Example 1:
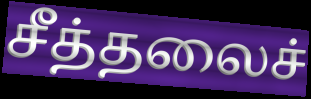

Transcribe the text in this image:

சீத்தலைச்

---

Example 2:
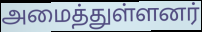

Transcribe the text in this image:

அமைத்துள்ளனர்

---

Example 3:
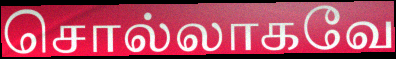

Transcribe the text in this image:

சொல்லாகவே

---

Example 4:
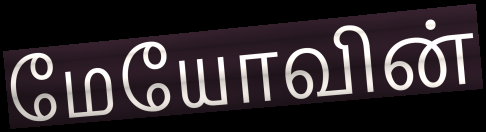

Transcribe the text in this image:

மேயோவின்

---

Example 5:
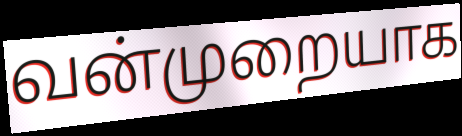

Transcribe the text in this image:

வன்முறையாக